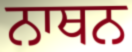
ਨਾਥਨ